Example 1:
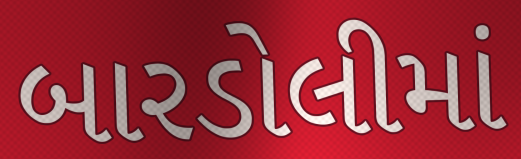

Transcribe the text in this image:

બારડોલીમાં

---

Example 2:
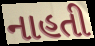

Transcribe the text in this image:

નાહતી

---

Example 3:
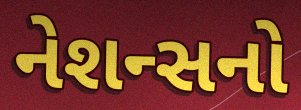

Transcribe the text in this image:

નેશન્સનો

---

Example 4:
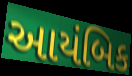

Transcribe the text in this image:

આયંબિક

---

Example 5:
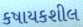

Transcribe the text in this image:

કષાયકશીલ